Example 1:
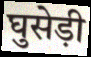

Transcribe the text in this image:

घुसेड़ी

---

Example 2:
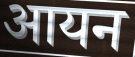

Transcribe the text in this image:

आयन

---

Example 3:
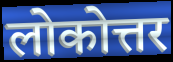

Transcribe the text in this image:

लोकोत्तर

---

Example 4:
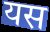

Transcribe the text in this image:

यस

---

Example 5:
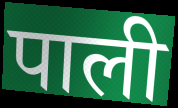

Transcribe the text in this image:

पाली